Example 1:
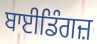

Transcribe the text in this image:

ਬਾਈਡਿੰਗਜ਼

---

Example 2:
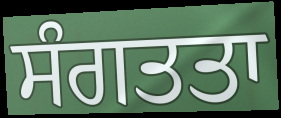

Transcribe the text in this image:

ਸੰਗਤਤਾ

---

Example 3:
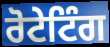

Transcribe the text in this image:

ਰੋਟੇਟਿੰਗ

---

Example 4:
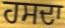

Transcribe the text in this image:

ਹਸਦਾ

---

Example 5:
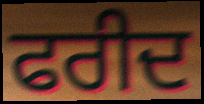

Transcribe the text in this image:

ਫਰੀਦ